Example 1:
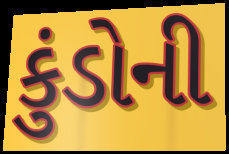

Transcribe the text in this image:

કુંડોની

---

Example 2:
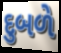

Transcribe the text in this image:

દુબળે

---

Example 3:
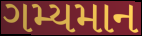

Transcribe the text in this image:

ગમ્યમાન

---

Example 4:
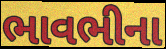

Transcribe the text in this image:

ભાવભીના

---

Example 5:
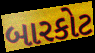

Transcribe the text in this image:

બારકોટ